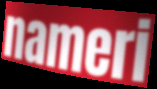
nameri